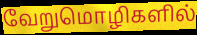
வேறுமொழிகளில்